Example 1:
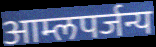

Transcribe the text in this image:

आम्लपर्जन्य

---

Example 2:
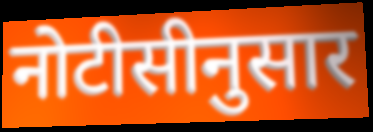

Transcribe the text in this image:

नोटीसीनुसार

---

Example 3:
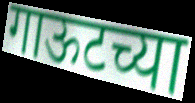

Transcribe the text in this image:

गाऊटच्या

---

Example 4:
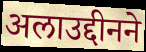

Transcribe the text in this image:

अलाउद्दीनने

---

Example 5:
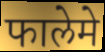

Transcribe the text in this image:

फालेमे